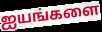
ஐயங்களை